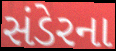
સંડેરના